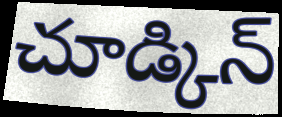
చూడ్కిన్